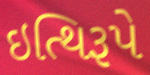
ઇત્થિરૂપે